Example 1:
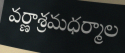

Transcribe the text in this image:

వర్ణాశ్రమధర్మాల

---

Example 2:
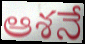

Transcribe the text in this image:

ఆశనే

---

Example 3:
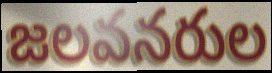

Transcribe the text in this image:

జలవనరుల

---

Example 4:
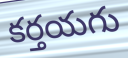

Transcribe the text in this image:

కర్తయగు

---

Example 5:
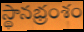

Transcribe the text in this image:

స్థానభ్రంశం